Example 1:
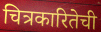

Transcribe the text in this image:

चित्रकारितेची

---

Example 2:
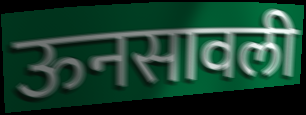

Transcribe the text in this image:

ऊनसावली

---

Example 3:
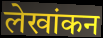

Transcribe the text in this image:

लेखांकन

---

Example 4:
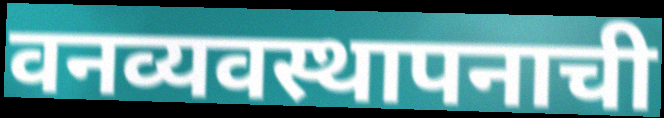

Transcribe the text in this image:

वनव्यवस्थापनाची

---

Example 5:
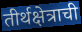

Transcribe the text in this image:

तीर्थक्षेत्राची